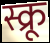
स्क्रू